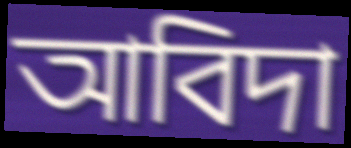
আবিদা